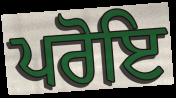
ਪਰੋਇ